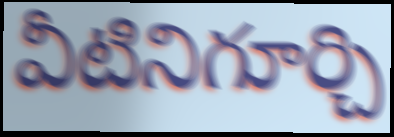
వీటినిగూర్చి